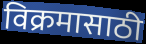
विक्रमासाठी